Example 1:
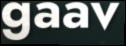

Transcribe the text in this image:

gaav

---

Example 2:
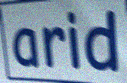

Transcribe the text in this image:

arid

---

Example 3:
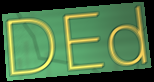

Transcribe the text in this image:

DEd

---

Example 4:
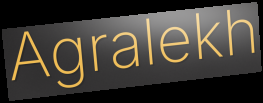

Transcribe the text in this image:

Agralekh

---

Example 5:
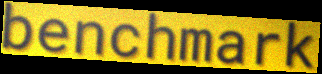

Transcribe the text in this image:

benchmark